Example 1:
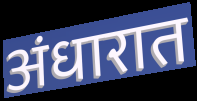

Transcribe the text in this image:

अंधारात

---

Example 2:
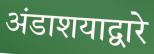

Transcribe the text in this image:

अंडाशयाद्वारे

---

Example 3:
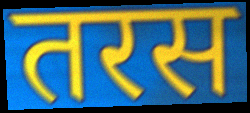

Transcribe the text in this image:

तरस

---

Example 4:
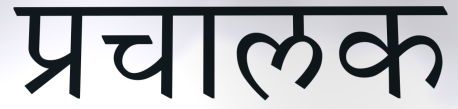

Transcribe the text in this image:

प्रचालक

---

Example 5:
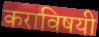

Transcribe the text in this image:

कराविषयी